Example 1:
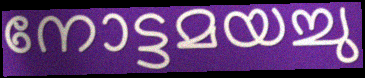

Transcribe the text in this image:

നോട്ടമയച്ചു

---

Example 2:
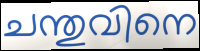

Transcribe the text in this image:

ചന്തുവിനെ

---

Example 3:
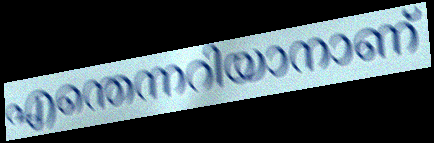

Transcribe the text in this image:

എന്തെന്നറിയാനാണ്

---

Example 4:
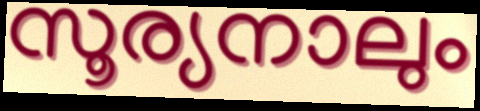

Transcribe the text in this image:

സൂര്യനാലും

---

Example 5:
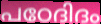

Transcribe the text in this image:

പഠേദിദം